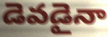
డెవడైనా